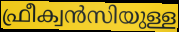
ഫ്രീക്വൻസിയുള്ള